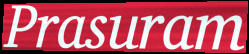
Prasuram